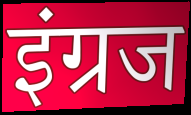
इंग्रज